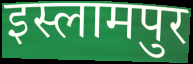
इस्लामपुर